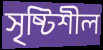
সৃষ্টিশীল